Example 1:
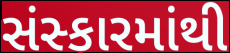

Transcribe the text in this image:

સંસ્કારમાંથી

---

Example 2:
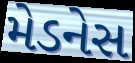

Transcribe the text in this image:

મેડનેસ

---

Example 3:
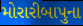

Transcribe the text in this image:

મોરારીબાપુના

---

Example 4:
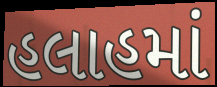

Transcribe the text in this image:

હલાહમાં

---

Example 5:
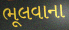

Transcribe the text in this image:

ભૂલવાના